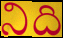
నిది